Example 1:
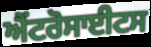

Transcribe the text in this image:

ਐਂਟਰੋਸਾਈਟਸ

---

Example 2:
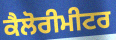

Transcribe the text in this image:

ਕੈਲੋਰੀਮੀਟਰ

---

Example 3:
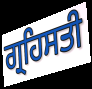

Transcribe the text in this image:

ਗ੍ਰਹਿਸਤੀ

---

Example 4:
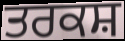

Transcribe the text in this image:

ਤਰਕਸ਼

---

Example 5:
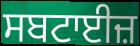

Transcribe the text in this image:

ਸਬਟਾਈਜ਼